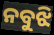
ନବୁଝି